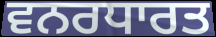
ਵਨਰਧਾਰਤ